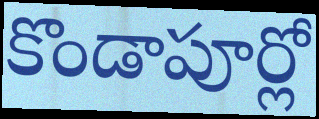
కొండాపూర్లో